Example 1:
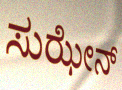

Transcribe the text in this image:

ಸುಝೇನ್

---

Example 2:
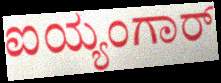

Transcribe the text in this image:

ಐಯ್ಯಂಗಾರ್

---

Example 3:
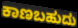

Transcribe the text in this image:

ಕಾಣಬಹುದು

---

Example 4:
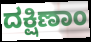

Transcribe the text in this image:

ದಕ್ಷಿಣಾಂ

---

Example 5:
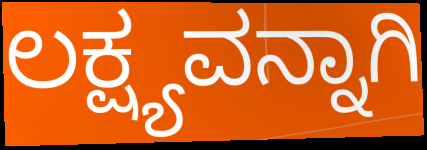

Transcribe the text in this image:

ಲಕ್ಷ್ಯವನ್ನಾಗಿ